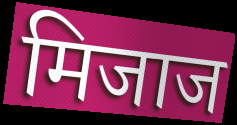
मिजाज